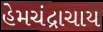
હેમચંદ્રાચાય